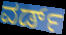
ವರ್ಡ್